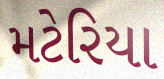
મટેરિયા